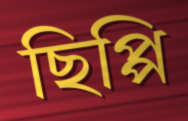
ছিপ্পি